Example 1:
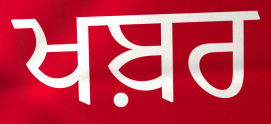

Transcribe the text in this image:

ਖਬ਼ਰ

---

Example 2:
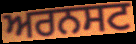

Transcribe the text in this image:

ਅਰਨਸਟ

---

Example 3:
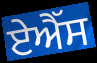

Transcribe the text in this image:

ਏਐੱਸ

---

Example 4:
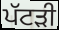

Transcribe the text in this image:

ਪੱਟੜੀ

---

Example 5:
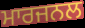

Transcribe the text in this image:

ਮਾਰਜਨਲ